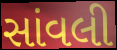
સાંવલી